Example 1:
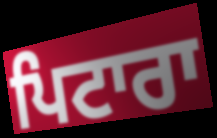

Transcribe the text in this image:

ਪਿਟਾਰਾ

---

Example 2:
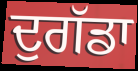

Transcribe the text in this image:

ਦੁਗੱਡਾ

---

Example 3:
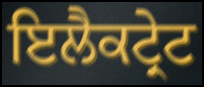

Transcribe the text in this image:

ਇਲੈਕਟ੍ਰੇਟ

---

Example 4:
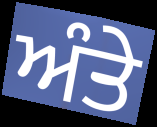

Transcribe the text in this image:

ਅੰਤੇ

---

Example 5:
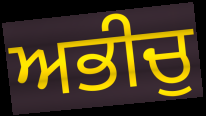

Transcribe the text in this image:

ਅਭੀਚੁ